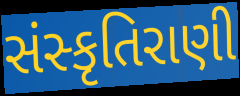
સંસ્કૃતિરાણી